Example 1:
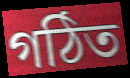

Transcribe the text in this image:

গঠিত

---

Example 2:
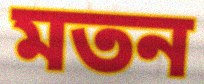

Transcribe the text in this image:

মতন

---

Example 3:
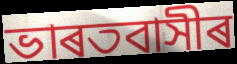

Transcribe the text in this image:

ভাৰতবাসীৰ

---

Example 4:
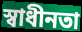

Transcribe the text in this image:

স্বাধীনতা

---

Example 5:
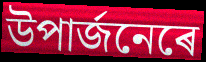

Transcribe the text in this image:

উপাৰ্জনেৰে